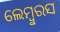
ଲେମ୍ବୁରସ